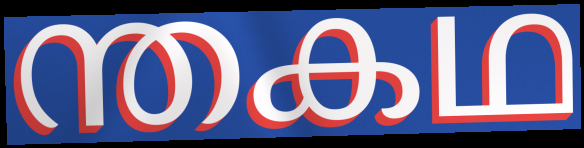
ന്തകഥ